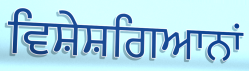
ਵਿਸ਼ੇਸ਼ਗਿਆਨਾਂ